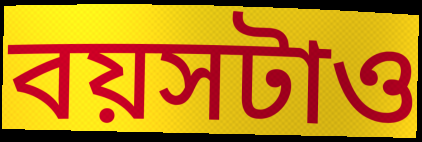
বয়সটাও